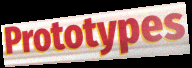
Prototypes